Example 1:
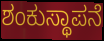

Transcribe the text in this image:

ಶಂಕುಸ್ಥಾಪನೆ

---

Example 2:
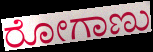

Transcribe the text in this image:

ರೋಗಾಣು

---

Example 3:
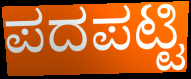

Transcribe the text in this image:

ಪದಪಟ್ಟಿ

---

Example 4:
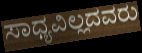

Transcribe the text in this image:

ಸಾಧ್ಯವಿಲ್ಲದವರು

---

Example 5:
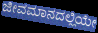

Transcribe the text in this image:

ಜೀವಮಾನದಲ್ಲಿಯೇ